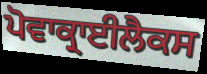
ਪੋਵਾਕ੍ਰਾਈਲੈਕਸ